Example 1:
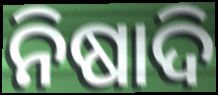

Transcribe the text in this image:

ନିଷାଦି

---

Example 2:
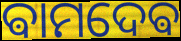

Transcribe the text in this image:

ଵାମଦେଵ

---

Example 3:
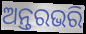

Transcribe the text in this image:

ଅନ୍ତରଭରି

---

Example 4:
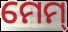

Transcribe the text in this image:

ମେମ୍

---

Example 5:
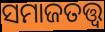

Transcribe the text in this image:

ସମାଜତତ୍ତ୍ବ